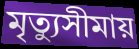
মৃত্যুসীমায়